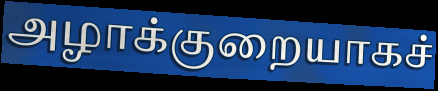
அழாக்குறையாகச்